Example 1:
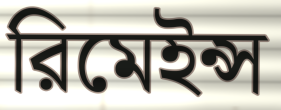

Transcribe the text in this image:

রিমেইন্স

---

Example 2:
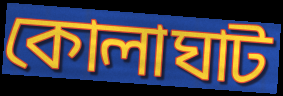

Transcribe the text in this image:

কোলাঘাট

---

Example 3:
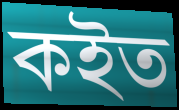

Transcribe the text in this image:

কইত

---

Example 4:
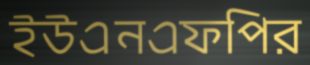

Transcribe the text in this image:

ইউএনএফপির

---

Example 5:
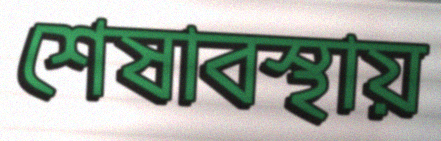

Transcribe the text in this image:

শেষাবস্থায়